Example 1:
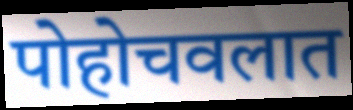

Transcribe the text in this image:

पोहोचवलात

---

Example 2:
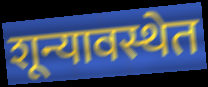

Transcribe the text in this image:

शून्यावस्थेत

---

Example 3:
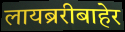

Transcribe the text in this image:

लायब्ररीबाहेर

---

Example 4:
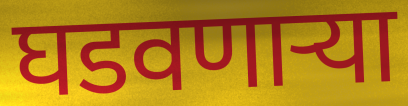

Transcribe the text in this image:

घडवणार्‍या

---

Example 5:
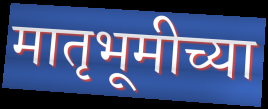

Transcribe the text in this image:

मातृभूमीच्या